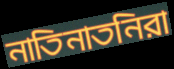
নাতিনাতনিরা